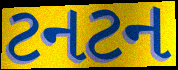
ટનટન